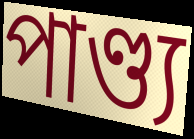
পাণ্ড্য